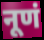
नूणं